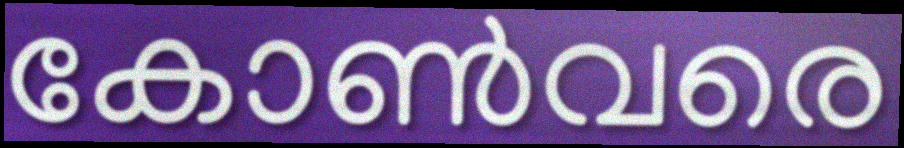
കോൺവരെ